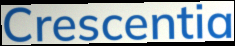
Crescentia